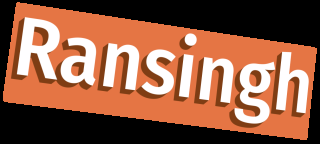
Ransingh